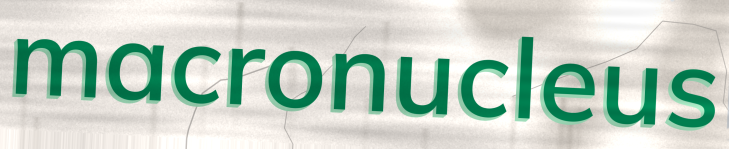
macronucleus